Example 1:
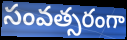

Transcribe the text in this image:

సంవత్సరంగా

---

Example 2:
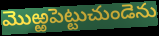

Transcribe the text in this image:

మొఱ్ఱపెట్టుచుండెను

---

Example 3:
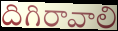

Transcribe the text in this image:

దిగిరావాలి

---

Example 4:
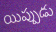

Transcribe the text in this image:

యిప్పుడు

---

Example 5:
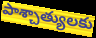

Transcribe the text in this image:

పాశ్చాత్యులకు